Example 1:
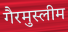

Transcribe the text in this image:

गैरमुस्लीम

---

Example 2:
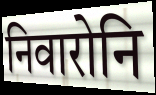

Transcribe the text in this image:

निवारोनि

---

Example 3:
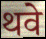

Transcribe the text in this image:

थवे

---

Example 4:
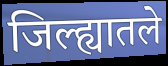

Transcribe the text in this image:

जिल्ह्यातले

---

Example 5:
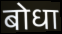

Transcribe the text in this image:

बोधा